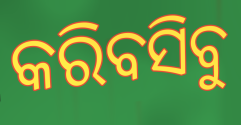
କରିବସିବୁ